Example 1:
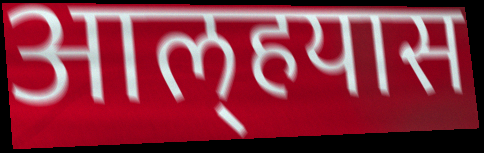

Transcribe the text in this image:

आल्हयास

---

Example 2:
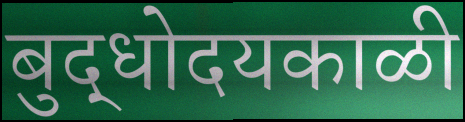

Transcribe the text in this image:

बुद्धोदयकाळी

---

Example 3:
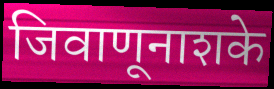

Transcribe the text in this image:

जिवाणूनाशके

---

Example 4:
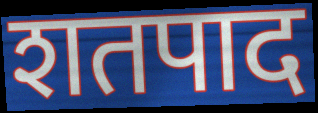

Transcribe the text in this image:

शतपाद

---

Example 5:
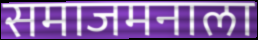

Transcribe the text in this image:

समाजमनाला